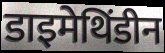
डाइमेथिंडीन